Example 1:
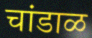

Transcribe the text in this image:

चांडाळ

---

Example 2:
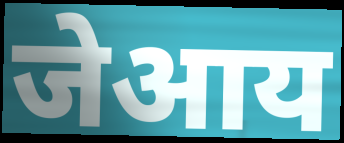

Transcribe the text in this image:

जेआय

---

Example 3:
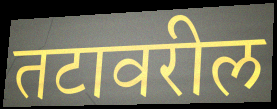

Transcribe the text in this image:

तटावरील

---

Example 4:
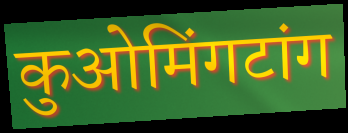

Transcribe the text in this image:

कुओमिंगटांग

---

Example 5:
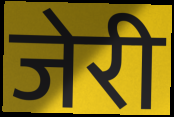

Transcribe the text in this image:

जेरी